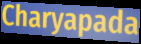
Charyapada